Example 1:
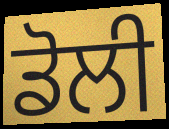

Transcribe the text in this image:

ਡੋਲੀ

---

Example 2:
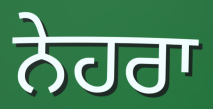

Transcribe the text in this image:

ਨੇਹਰਾ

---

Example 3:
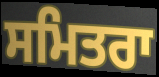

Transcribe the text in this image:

ਸਮਿਤਰਾ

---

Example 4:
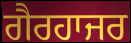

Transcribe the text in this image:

ਗੈਰਹਾਜਰ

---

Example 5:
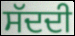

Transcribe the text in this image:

ਸੱਦਦੀ